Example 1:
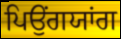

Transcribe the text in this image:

ਪਿਉਂਗਯਾਂਗ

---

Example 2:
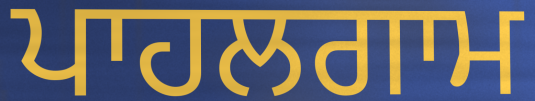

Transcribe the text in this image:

ਪਾਹਲਗਾਮ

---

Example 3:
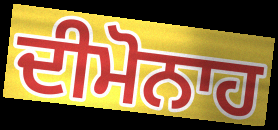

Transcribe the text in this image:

ਦੀਮੋਨਾਹ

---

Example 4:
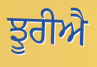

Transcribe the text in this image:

ਝੂਰੀਐ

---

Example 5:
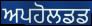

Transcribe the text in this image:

ਅਪਹੋਲਡਡ